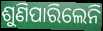
ଶୁଣିପାରିଲେନି